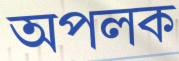
অপলক